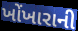
ખોંખારાની